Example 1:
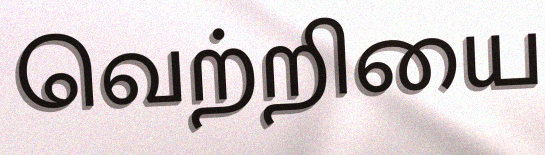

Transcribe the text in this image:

வெற்றியை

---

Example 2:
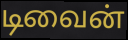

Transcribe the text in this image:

டிவைன்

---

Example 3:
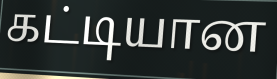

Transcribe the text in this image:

கட்டியான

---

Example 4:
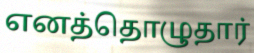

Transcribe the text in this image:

எனத்தொழுதார்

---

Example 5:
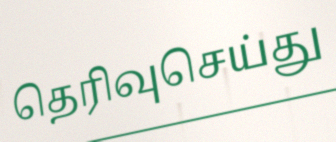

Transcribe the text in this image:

தெரிவுசெய்து